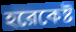
হরেকেষ্ট